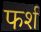
फर्श